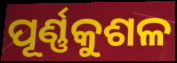
ପୂର୍ଣ୍ଣକୁଶଳ